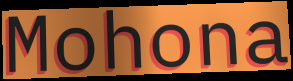
Mohona